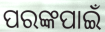
ପରଙ୍କପାଇଁ